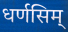
धर्णसिम्